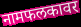
नामफलकावर